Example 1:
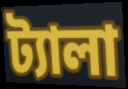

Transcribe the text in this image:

ট্যালা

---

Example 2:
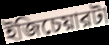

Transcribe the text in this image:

ইজিচেয়ারটা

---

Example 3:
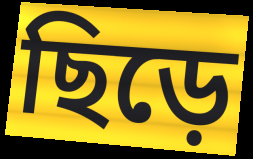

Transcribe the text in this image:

ছিড়ে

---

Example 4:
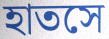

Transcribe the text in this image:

হাতসে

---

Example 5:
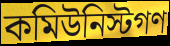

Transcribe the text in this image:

কমিউনিস্টগণ